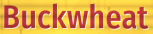
Buckwheat